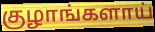
குழாங்களாய்